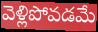
వెళ్లిపోవడమే